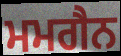
ਮਮਗੈਨ